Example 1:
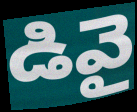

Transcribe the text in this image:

డివై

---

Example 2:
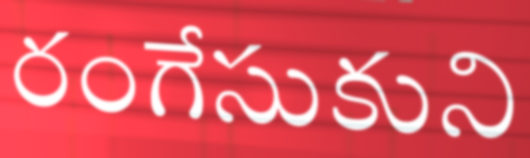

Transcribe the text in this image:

రంగేసుకుని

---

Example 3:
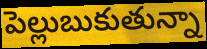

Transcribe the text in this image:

పెల్లుబుకుతున్నా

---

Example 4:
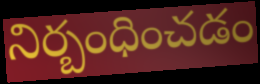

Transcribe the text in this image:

నిర్బంధించడం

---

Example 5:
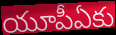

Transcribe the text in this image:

యూపీఏకు